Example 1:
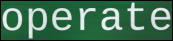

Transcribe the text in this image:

operate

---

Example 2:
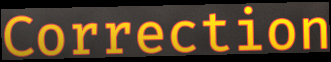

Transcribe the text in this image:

Correction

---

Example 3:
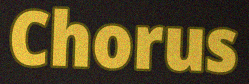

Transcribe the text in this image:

Chorus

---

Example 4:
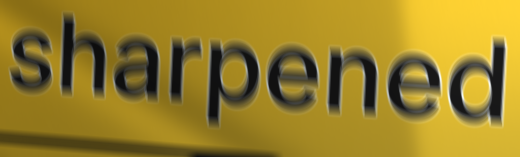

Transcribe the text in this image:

sharpened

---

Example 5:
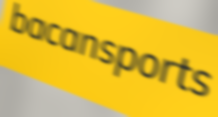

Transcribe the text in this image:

bacansports